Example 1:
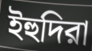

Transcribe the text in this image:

ইহুদিরা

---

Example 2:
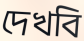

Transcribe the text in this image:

দেখবি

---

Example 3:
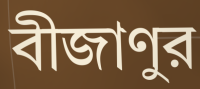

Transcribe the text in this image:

বীজাণুর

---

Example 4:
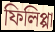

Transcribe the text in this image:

ফিলিপ্পা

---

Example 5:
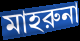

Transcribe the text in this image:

মাহরুনা